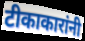
टीकाकारांनी